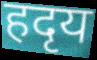
हदृय